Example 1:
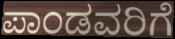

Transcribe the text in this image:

ಪಾಂಡವರಿಗೆ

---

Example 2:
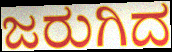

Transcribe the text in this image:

ಜರುಗಿದ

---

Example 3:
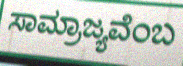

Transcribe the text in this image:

ಸಾಮ್ರಾಜ್ಯವೆಂಬ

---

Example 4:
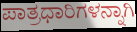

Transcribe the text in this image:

ಪಾತ್ರಧಾರಿಗಳನ್ನಾಗಿ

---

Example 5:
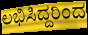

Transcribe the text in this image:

ಲಭಿಸಿದ್ದರಿಂದ